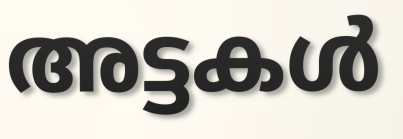
അട്ടകൾ